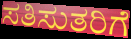
ಸತಿಸುತರಿಗೆ